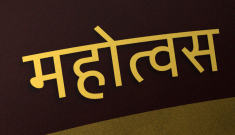
महोत्वस